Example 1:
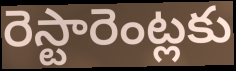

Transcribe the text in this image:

రెస్టారెంట్లకు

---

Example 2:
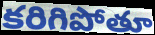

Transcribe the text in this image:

కరిగిపోతూ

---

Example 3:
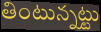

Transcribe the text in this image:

తింటున్నట్టు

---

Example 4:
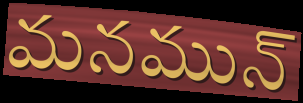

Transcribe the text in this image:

మనమున్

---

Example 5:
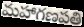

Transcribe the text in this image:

మహాగణపతి